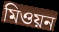
মিওয়ন